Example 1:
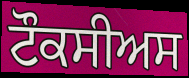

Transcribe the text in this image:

ਟੌਕਸੀਅਸ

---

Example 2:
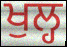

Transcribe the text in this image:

ਖੁਲ੍ਹ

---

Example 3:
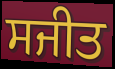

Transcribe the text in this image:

ਸਜੀਤ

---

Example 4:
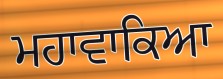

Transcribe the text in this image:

ਮਹਾਵਾਕਿਆ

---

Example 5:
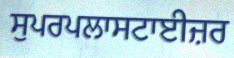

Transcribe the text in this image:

ਸੁਪਰਪਲਾਸਟਾਈਜ਼ਰ